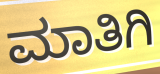
ಮಾತಿಗಿ